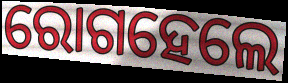
ରୋଗହେଲେ